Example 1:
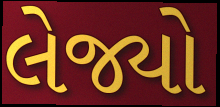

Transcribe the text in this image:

લેજ્યો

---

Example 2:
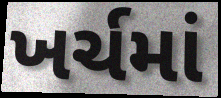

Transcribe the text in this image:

ખર્ચમાં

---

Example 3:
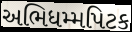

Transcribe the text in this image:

અભિધમ્મપિટક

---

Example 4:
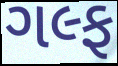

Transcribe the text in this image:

ગલ્ફ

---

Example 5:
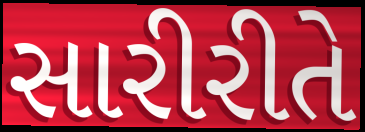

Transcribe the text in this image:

સારીરીતે